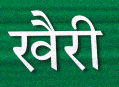
खैरी